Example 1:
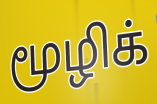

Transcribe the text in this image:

மூழிக்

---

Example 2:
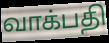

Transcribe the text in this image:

வாக்பதி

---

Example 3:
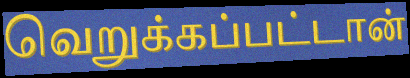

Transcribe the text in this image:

வெறுக்கப்பட்டான்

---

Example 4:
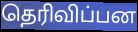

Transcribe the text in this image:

தெரிவிப்பன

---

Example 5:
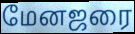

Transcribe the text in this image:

மேனஜரை